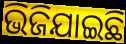
ଭିଜିଯାଇଛି